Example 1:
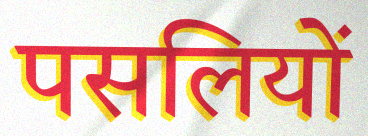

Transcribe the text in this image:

पसलियों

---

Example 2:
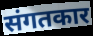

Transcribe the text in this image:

संगतकार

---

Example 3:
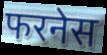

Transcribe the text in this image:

फरनेस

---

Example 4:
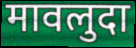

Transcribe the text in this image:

मावलुदा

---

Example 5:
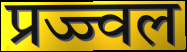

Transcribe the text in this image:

प्रज्ज्वल